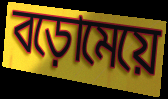
বড়োমেয়ে